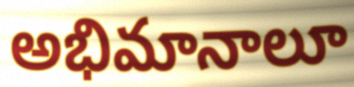
అభిమానాలూ